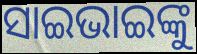
ସାଇଭାଇଙ୍କୁ